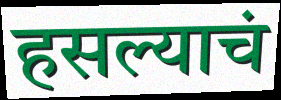
हसल्याचं